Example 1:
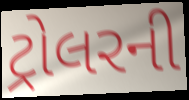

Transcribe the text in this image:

ટ્રોલરની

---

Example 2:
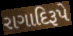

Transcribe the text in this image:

રાગાદિરૂપે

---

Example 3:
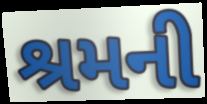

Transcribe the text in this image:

શ્રમની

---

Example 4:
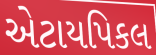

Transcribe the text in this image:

એટાયપિકલ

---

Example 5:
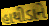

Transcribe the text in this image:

હાથીડાને